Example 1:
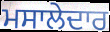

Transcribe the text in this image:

ਮਸਾਲੇਦਾਰ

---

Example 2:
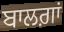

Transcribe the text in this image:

ਬਾਲਗ਼ਾਂ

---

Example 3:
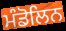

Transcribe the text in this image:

ਮੰਡੋਲਿਨ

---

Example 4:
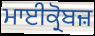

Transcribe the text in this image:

ਮਾਈਕ੍ਰੋਬਜ਼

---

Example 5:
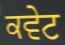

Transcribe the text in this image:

ਕਵੇਟ